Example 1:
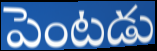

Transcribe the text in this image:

పెంటడు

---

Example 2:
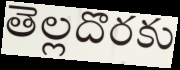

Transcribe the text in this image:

తెల్లదొరకు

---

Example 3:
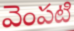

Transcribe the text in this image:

వెంపటి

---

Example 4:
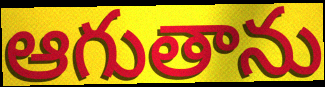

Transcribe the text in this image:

ఆగుతాను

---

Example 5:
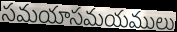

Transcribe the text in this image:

సమయాసమయములు